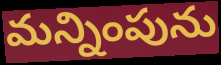
మన్నింపును